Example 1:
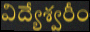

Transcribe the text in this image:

విద్యేశ్వరీం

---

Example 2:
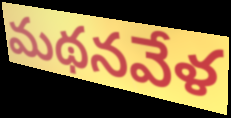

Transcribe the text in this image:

మథనవేళ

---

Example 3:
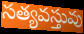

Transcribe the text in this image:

సత్యవస్తువు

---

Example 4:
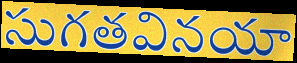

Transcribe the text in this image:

సుగతవినయా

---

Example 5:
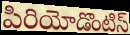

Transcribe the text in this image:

పిరియోడొంటిస్